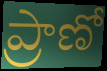
ప్రాణో